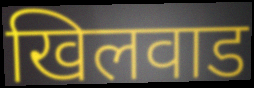
खिलवाड